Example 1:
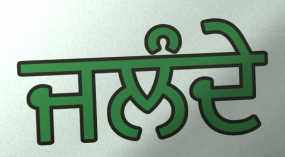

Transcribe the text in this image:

ਜਲੰਦੇ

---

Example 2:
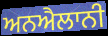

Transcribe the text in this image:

ਅਨਐਲਾਨੀ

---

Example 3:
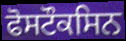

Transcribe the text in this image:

ਫੋਸਟੌਕਸਿਨ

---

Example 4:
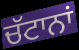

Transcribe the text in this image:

ਚੱਟਾਨਾਂ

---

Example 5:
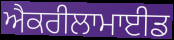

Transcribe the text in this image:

ਐਕਰੀਲਾਮਾਈਡ